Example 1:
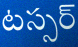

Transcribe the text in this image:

టస్సర్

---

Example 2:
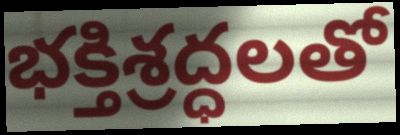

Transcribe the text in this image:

భక్తిశ్రద్ధలతో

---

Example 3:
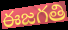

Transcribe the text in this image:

ఈజగతి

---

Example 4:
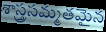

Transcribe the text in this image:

శాస్త్రసమ్మతమైన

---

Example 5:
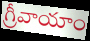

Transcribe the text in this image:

గ్రీవాయాం